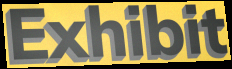
Exhibit